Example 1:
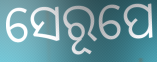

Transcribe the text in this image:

ସେରୂପେ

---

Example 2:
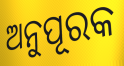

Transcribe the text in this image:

ଅନୁପୂରକ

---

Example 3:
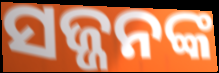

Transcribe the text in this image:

ସଜ୍ଜନଙ୍କ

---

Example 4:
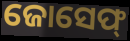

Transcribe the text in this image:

ଜୋସେଫ୍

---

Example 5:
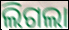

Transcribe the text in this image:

ଲିଗଲା